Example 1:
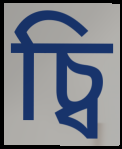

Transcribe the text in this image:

চ্বি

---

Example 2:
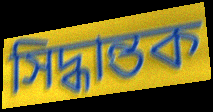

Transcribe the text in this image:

সিদ্ধান্তক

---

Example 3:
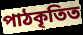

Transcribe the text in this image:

পাঠকৃতিত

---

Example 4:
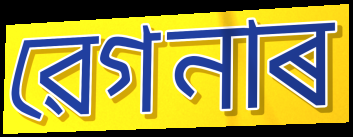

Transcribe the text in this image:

ৱেগনাৰ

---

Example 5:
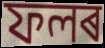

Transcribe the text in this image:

ফলৰ